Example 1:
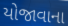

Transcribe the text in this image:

યોજાવાના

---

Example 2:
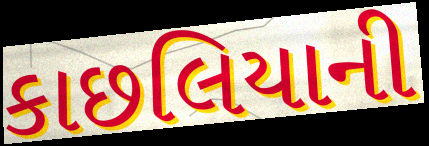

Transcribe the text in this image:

કાછલિયાની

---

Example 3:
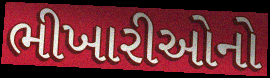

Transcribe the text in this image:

ભીખારીઓનો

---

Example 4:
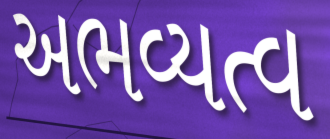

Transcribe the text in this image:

અભવ્યત્વ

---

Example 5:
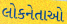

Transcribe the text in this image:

લોકનેતાઓ